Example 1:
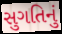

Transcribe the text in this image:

સુગતિનું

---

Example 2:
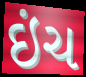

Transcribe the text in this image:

ઇંચ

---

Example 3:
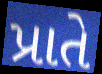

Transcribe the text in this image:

પ્રાતે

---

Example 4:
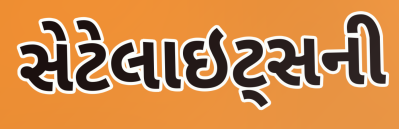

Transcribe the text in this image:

સેટેલાઇટ્સની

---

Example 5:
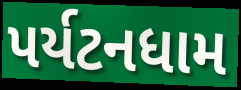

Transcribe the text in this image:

પર્યટનધામ